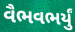
વૈભવભર્યું